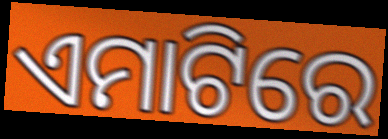
ଏମାଟିରେ